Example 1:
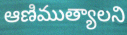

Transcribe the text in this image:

ఆణిముత్యాలని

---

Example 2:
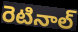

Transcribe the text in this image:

రెటినాల్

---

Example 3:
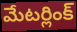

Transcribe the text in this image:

మేటర్లింక్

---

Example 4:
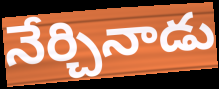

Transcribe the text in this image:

నేర్చినాడు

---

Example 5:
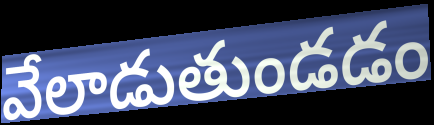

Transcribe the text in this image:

వేలాడుతుండడం